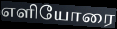
எளியோரை